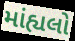
માંહ્યલો